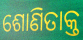
ଶୋଣିତାକ୍ତ